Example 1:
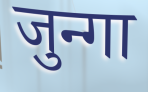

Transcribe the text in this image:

जुन्गा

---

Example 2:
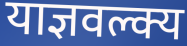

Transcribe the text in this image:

याज्ञवल्क्य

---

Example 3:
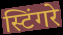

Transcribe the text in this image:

स्टिंगरे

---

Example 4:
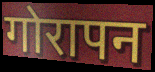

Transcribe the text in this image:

गोरापन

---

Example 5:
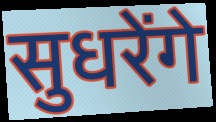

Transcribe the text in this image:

सुधरेंगे